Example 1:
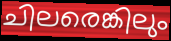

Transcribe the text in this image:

ചിലരെങ്കിലും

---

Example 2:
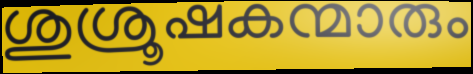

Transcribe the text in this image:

ശുശ്രൂഷകന്മാരും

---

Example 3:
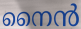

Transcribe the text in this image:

നൈൻ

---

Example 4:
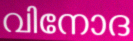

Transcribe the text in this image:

വിനോദ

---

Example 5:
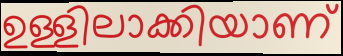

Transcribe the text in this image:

ഉള്ളിലാക്കിയാണ്